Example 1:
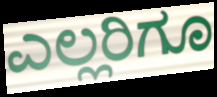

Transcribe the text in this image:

ಎಲ್ಲರಿಗೂ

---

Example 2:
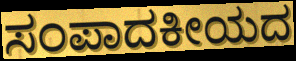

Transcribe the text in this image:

ಸಂಪಾದಕೀಯದ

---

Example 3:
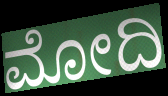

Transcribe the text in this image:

ಮೋದಿ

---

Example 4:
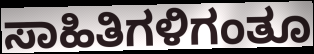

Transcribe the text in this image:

ಸಾಹಿತಿಗಳಿಗಂತೂ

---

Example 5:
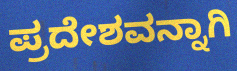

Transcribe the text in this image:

ಪ್ರದೇಶವನ್ನಾಗಿ